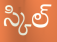
స్కిల్